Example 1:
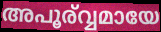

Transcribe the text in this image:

അപൂര്വ്വമായേ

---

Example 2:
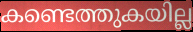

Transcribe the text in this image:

കണ്ടെത്തുകയില്ല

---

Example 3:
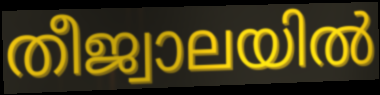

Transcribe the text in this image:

തീജ്വാലയിൽ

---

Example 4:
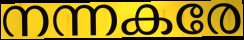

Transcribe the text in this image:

നന്നകരേ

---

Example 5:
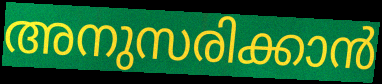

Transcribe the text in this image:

അനുസരിക്കാൻ